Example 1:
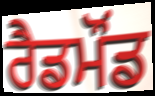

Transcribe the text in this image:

ਰੈਡਮੌਂਡ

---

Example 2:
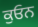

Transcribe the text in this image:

ਕੁਓਨ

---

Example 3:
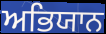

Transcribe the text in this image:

ਅਭਿਯਾਨ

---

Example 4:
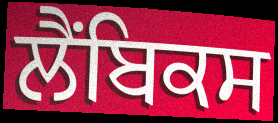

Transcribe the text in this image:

ਲੈਂਬਿਕਸ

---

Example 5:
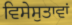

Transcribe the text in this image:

ਵਿਸੇਸੁਤਾਵਾਂ